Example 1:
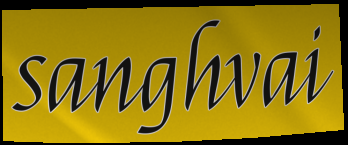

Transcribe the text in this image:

sanghvai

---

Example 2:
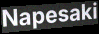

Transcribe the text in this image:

Napesaki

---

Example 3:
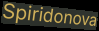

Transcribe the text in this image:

Spiridonova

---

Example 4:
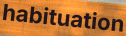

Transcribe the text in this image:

habituation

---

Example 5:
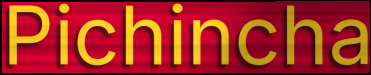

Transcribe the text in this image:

Pichincha